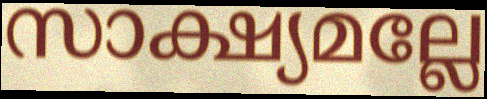
സാക്ഷ്യമല്ലേ